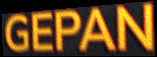
GEPAN